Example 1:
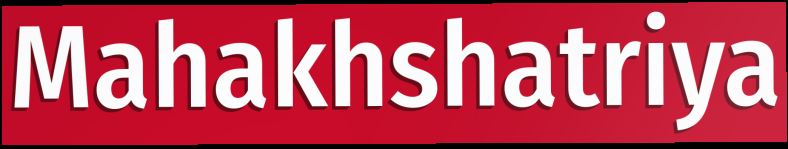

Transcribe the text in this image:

Mahakhshatriya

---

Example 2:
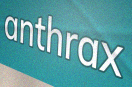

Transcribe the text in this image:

anthrax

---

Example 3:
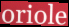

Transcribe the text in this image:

oriole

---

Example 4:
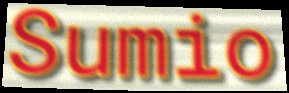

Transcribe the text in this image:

Sumio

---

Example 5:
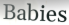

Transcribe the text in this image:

Babies